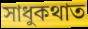
সাধুকথাত